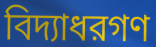
বিদ্যাধরগণ